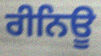
ਰੀਨਿਊ